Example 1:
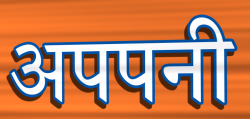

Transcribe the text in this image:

अपपनी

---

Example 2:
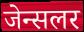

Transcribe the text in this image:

जेन्सलर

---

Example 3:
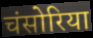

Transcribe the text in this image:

चंसोरिया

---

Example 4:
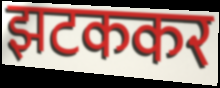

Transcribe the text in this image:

झटककर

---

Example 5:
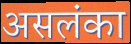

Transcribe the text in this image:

असलंका